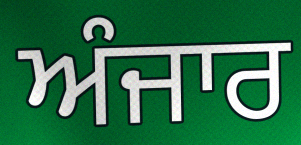
ਅੰਜਾਰ